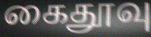
கைதூவு